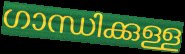
ഗാന്ധിക്കുള്ള